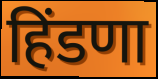
हिंडणा